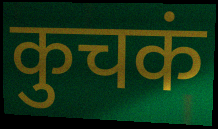
कुचकं